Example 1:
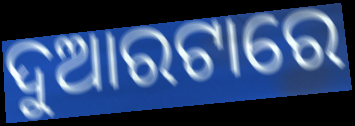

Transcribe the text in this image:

ଦୁଆରଟାରେ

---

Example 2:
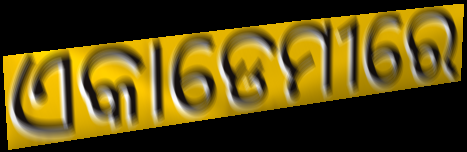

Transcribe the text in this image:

ଏକାଡେମୀରେ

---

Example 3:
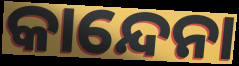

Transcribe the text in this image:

କାନ୍ଦେନା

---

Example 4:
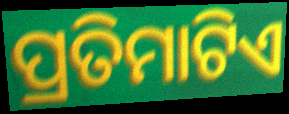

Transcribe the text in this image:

ପ୍ରତିମାଟିଏ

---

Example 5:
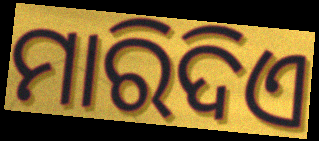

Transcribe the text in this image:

ମାରିଦିଏ